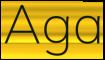
Aga